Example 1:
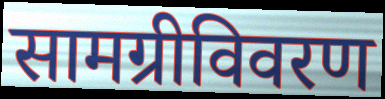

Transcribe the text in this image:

सामग्रीविवरण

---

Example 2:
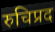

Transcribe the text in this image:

रुचिप्रद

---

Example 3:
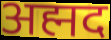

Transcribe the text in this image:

अह्मद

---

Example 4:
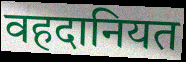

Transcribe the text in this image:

वहदानियत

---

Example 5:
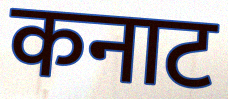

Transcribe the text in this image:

कनाट